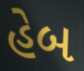
હેબ